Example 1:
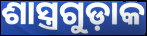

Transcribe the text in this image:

ଶାସ୍ତ୍ରଗୁଡ଼ାକ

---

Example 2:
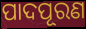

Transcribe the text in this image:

ପାଦପୂରଣ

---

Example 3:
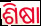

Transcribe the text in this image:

ଶିଷା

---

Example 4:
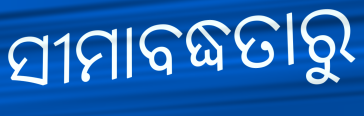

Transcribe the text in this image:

ସୀମାବଦ୍ଧତାରୁ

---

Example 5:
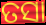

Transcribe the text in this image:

ତସା